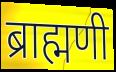
ब्राह्मणी